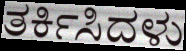
ತರ್ಕಿಸಿದಳು